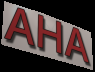
AHA